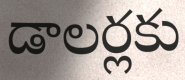
డాలర్లకు